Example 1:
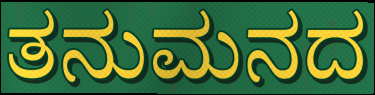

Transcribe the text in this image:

ತನುಮನದ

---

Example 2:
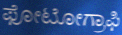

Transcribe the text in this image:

ಫೋಟೋಗ್ರಾಫಿ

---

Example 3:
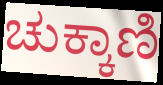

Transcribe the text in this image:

ಚುಕ್ಕಾಣಿ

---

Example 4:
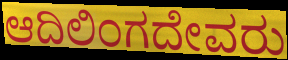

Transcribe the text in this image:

ಆದಿಲಿಂಗದೇವರು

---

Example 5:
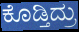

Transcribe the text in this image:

ಕೊಡ್ತಿದ್ರು